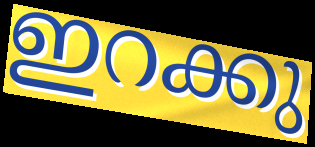
ഇറക്കു